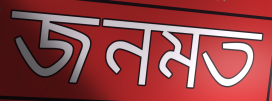
জনমত